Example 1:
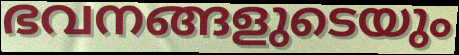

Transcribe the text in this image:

ഭവനങ്ങളുടെയും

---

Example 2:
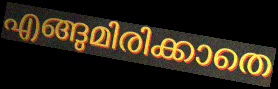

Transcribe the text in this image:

എങ്ങുമിരിക്കാതെ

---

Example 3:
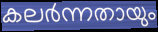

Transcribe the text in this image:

കലർന്നതായും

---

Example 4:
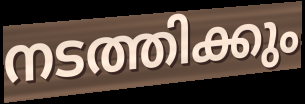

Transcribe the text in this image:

നടത്തിക്കും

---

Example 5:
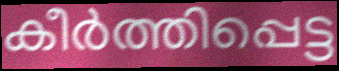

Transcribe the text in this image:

കീർത്തിപ്പെട്ട